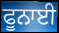
ਫੂਨਾਈ